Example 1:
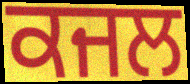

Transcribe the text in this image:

ਕਜਲ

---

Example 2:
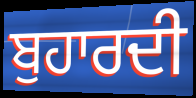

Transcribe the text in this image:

ਬੁਹਾਰਦੀ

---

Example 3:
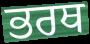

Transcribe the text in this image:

ਭਰਥ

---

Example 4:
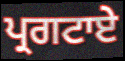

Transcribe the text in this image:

ਪ੍ਰਗਟਾਏ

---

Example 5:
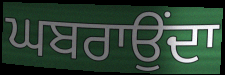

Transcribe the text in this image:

ਘਬਰਾਉਂਦਾ